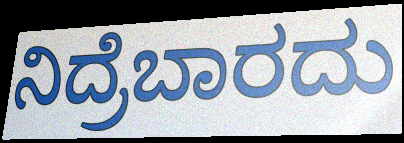
ನಿದ್ರೆಬಾರದು